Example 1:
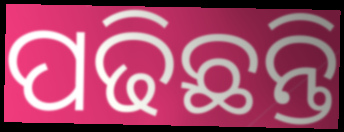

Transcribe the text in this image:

ପଢିଛନ୍ତି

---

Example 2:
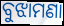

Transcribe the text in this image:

ବୁଝାମଣା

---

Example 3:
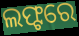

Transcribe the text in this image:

ଲଫ୍ଟରେ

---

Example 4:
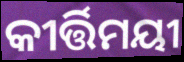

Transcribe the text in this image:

କୀର୍ତ୍ତିମୟୀ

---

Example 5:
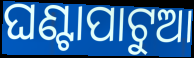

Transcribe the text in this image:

ଘଣ୍ଟାପାଟୁଆ